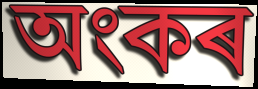
অংকৰ